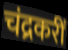
चंद्रकरीं